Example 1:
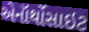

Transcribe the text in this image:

એનૉર્થોસાઇટ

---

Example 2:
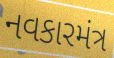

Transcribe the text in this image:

નવકારમંત્ર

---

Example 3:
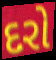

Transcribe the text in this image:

દરો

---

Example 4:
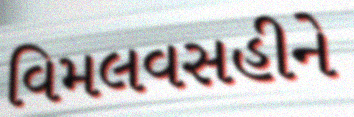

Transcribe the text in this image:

વિમલવસહીને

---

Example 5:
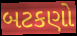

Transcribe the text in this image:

બટકણો